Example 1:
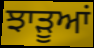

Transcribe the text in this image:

ਝਾੜੂਆਂ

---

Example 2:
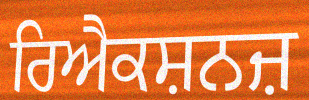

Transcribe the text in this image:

ਰਿਐਕਸ਼ਨਜ਼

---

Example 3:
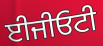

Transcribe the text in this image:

ਈਜੀਓਟੀ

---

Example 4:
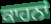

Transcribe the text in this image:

ਕਾਹਨਾਂ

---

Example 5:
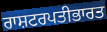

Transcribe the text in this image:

ਰਾਸ਼ਟਰਪਤੀਭਾਰਤ